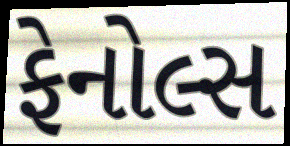
ફેનોલ્સ